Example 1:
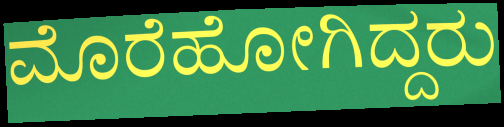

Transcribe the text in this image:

ಮೊರೆಹೋಗಿದ್ದರು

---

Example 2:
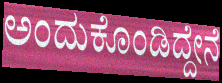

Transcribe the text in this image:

ಅಂದುಕೊಂಡಿದ್ದೇನೆ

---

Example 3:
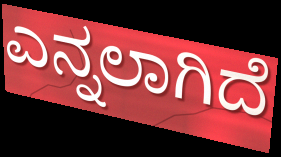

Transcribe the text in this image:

ಎನ್ನಲಾಗಿದೆ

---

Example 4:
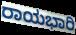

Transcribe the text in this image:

ರಾಯಭಾರಿ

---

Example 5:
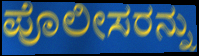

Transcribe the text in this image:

ಪೊಲೀಸರನ್ನು